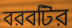
বরবটির